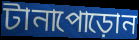
টানাপোড়োন